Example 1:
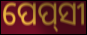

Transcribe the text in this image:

ପେପ୍‌ସୀ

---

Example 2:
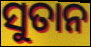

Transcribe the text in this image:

ସୁତାନ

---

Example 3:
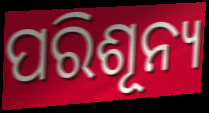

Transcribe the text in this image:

ପରିଶୂନ୍ୟ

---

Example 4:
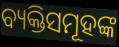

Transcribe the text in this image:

ବ୍ୟକ୍ତିସମୂହଙ୍କ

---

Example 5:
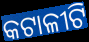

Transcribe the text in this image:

କଟାଳୀଟି